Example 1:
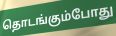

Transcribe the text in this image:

தொடங்கும்போது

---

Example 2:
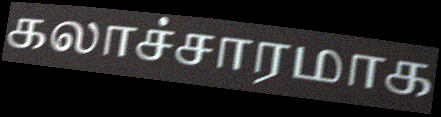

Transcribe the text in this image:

கலாச்சாரமாக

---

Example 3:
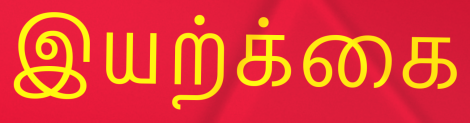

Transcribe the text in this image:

இயற்க்கை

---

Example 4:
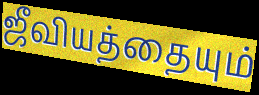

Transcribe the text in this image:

ஜீவியத்தையும்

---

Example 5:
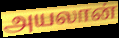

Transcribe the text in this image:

அயலான்